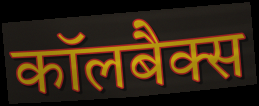
कॉलबैक्स